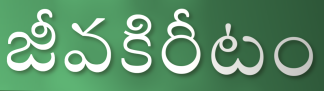
జీవకిరీటం